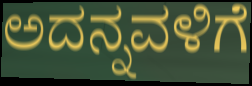
ಅದನ್ನವಳಿಗೆ